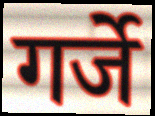
गर्जे